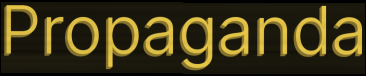
Propaganda